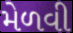
મેળવી